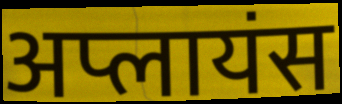
अप्लायंस